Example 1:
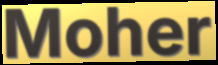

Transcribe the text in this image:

Moher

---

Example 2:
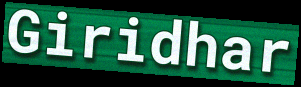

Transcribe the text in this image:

Giridhar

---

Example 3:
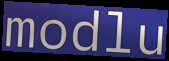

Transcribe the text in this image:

modlu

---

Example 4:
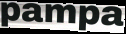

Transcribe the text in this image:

pampa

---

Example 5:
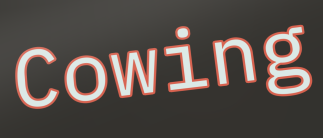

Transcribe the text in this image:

Cowing